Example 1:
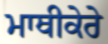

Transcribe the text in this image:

ਮਾਥੀਕੇਰੇ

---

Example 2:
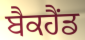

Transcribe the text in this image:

ਬੈਕਹੈਂਡ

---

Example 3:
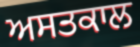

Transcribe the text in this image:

ਅਸਤਕਾਲ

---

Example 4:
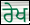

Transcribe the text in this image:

ਰੇਖ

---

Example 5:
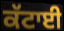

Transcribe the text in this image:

ਕੱਟਾਈ